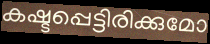
കഷ്ടപ്പെട്ടിരിക്കുമോ